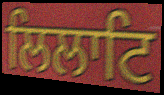
ਲਿਲਾਟਿ